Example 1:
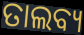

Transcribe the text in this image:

ତାଲବ୍ୟ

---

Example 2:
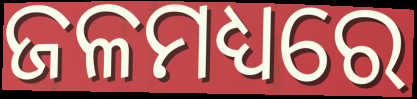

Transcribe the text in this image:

ଜଳମଧ୍ଯରେ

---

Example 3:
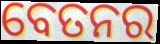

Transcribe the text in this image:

ବେତନର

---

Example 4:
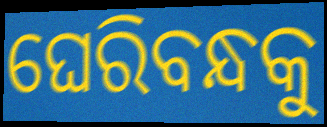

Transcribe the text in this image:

ଘେରିବନ୍ଧକୁ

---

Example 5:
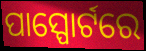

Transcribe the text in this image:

ପାସ୍ପୋର୍ଟରେ